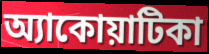
অ্যাকোয়াটিকা